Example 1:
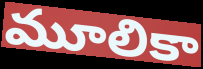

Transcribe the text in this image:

మూలికా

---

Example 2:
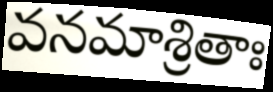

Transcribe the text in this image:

వనమాశ్రితాః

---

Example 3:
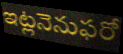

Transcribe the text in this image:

ఇట్లనెనుఫరో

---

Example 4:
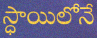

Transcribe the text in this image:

స్ధాయిలోనే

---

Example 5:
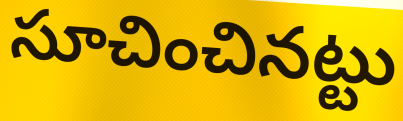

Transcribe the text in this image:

సూచించినట్టు